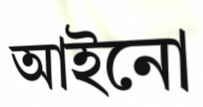
আইনো